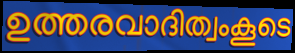
ഉത്തരവാദിത്വംകൂടെ